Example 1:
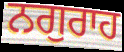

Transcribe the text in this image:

ਨਗੁਰਾਹ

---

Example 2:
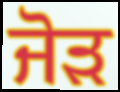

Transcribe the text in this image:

ਜੋੜ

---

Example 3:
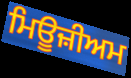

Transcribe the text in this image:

ਮਿਊਜ਼ੀਅਮ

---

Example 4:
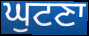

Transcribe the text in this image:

ਘੁਟਣਾ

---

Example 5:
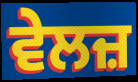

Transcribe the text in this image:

ਵੇਲਜ਼